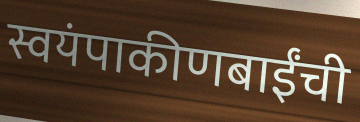
स्वयंपाकीणबाईंची